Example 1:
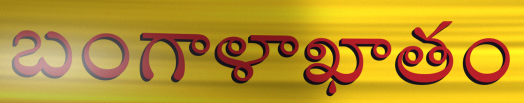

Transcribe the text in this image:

బంగాళాఖాతం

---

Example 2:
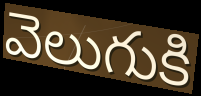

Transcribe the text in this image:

వెలుగుకి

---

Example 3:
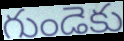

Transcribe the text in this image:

గుండెకు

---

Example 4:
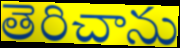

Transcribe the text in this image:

తెరిచాను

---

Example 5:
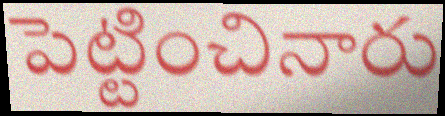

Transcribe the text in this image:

పెట్టించినారు